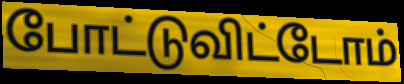
போட்டுவிட்டோம்